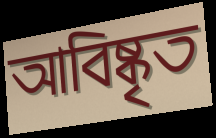
আবিষ্কৃত